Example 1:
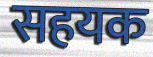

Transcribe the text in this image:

सहयक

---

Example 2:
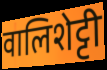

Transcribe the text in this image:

वालिशेट्टी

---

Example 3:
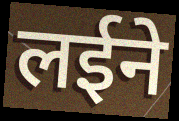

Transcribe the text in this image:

लईने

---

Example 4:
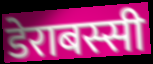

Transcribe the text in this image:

डेराबस्सी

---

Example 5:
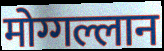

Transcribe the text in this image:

मोग्गल्लान